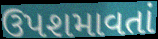
ઉપશમાવતાં